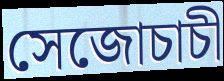
সেজোচাচী